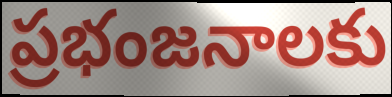
ప్రభంజనాలకు